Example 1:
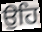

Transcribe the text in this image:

ਉਹਿ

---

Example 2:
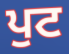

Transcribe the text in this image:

ਪੁਟ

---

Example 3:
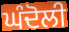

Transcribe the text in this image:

ਘੰਦੋਲੀ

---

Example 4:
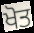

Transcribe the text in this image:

ਖੋਤ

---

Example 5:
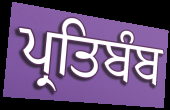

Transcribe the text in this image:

ਪ੍ਰਤਿਬੰਬ